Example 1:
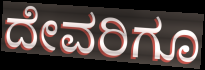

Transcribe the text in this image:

ದೇವರಿಗೂ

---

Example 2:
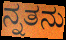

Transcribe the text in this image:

ನ್ನತನು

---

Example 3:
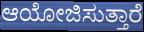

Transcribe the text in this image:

ಆಯೋಜಿಸುತ್ತಾರೆ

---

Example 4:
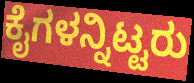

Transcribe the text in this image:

ಕೈಗಳನ್ನಿಟ್ಟರು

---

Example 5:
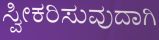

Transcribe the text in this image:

ಸ್ವೀಕರಿಸುವುದಾಗಿ